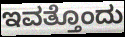
ಇವತ್ತೊಂದು